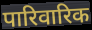
पारिवारिक